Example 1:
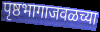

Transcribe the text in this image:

पृष्ठभागाजवळच्या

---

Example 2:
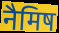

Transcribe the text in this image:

नैमिष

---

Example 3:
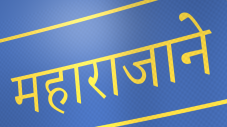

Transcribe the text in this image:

महाराजाने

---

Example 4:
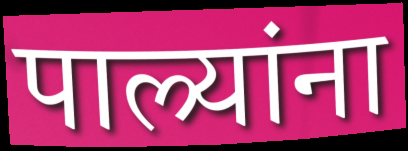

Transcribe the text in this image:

पाल्यांना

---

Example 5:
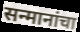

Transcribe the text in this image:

सन्मानांचा